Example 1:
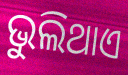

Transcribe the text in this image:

ଭୁଲିଥାଏ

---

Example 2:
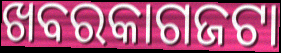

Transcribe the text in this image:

ଖବରକାଗଜଟା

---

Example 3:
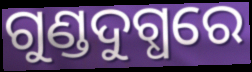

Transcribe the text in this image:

ଗୁଣ୍ଡଦୁଗ୍ଧରେ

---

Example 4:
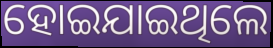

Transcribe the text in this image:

ହୋଇଯାଇଥିଲେ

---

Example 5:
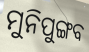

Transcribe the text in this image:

ମୁନିପୁଙ୍ଗବ